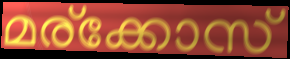
മര്ക്കോസ്